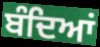
ਬੰਦਿਆਂ